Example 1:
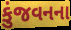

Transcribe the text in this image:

કુંજવનના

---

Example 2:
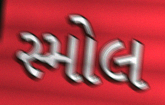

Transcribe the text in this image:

સ્મોલ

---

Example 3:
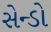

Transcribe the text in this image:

સેન્ડો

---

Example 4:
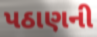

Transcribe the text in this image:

પઠાણની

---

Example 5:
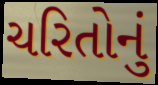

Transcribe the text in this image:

ચરિતોનું